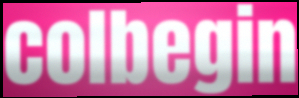
colbegin